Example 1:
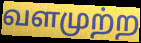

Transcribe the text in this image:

வளமுற்ற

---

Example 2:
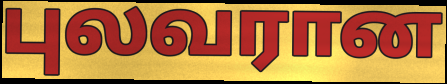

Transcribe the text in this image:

புலவரான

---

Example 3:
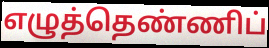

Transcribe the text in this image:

எழுத்தெண்ணிப்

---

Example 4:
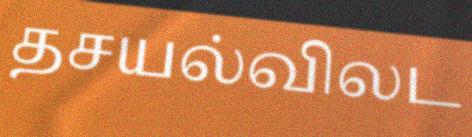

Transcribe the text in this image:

தசயல்விலட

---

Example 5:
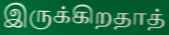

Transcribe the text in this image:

இருக்கிறதாத்